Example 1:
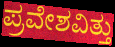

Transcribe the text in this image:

ಪ್ರವೇಶವಿತ್ತು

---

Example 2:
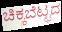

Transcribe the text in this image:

ಚಿಕ್ಕಬೆಟ್ಟದ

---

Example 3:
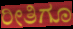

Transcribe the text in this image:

ರೀತಿಗೂ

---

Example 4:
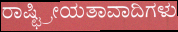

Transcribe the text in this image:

ರಾಷ್ಟ್ರೀಯತಾವಾದಿಗಳು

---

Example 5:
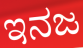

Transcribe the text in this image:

ಇನಜ